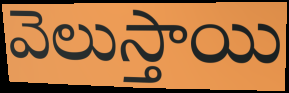
వెలుస్తాయి